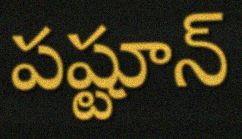
పష్టూన్